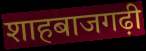
शाहबाजगढ़ी